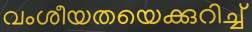
വംശീയതയെക്കുറിച്ച്